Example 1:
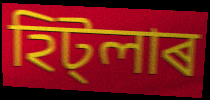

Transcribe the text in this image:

হিট্‌লাৰ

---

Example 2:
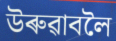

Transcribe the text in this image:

উৰুৱাবলৈ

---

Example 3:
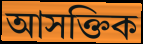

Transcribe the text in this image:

আসক্তিক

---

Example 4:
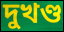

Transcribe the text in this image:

দুখণ্ড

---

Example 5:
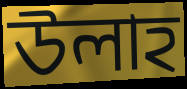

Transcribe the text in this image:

উলাহ